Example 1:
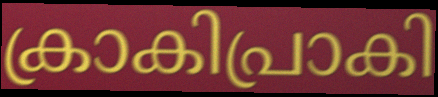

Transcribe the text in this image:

ക്രാകിപ്രാകി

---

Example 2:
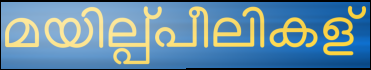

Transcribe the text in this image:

മയില്പ്പീലികള്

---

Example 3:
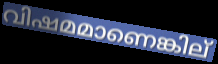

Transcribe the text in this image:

വിഷമമാണെങ്കില്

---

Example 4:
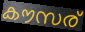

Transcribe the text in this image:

കൗസര്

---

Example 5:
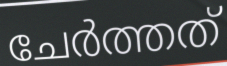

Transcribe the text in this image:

ചേർത്തത്